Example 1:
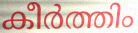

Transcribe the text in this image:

കീർത്തിം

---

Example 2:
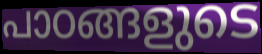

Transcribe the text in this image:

പാഠങ്ങളുടെ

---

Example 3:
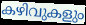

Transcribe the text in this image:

കഴിവുകളും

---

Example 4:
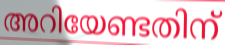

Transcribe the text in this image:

അറിയേണ്ടതിന്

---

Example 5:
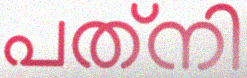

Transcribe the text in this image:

പത്‌നി